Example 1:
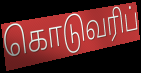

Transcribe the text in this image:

கொடுவரிப்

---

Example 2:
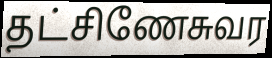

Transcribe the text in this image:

தட்சிணேசுவர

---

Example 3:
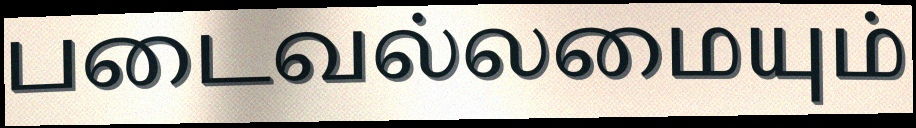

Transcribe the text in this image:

படைவல்லமையும்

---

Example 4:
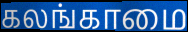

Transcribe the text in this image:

கலங்காமை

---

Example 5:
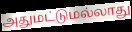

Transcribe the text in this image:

அதுமட்டுமல்லாது